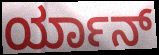
ರ್ಯಾನ್